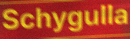
Schygulla